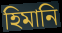
হিমানি